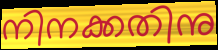
നിനക്കതിനു